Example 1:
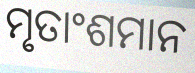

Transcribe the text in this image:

ମୃତାଂଶମାନ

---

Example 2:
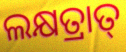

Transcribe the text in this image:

ଲକ୍ଷତ୍ରାତ୍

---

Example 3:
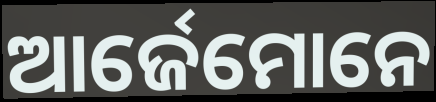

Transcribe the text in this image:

ଆର୍ଜେମୋନେ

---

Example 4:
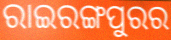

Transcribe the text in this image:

ରାଇରଙ୍ଗପୁରର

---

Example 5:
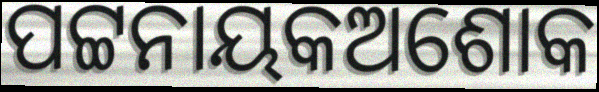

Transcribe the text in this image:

ପଟ୍ଟନାୟକଅଶୋକ